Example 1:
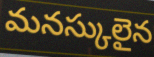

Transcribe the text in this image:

మనస్కులైన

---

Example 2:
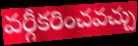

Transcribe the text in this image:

వర్గీకరించవచ్చు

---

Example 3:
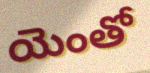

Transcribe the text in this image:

యెంతో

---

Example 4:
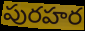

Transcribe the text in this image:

పురహర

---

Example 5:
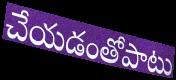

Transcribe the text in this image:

చేయడంతోపాటు